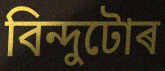
বিন্দুটোৰ